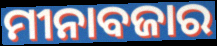
ମୀନାବଜାର